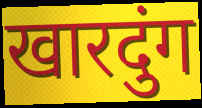
खारदुंग